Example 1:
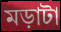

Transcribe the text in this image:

মড়াটা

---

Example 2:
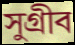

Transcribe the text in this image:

সুগ্রীব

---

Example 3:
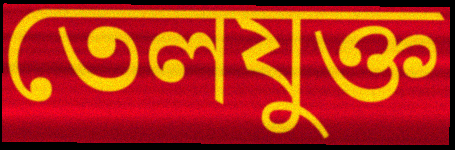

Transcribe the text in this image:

তেলযুক্ত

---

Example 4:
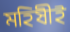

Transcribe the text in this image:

মহিষীই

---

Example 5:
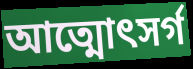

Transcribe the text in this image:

আত্মোৎসর্গ